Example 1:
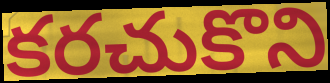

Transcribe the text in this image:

కరచుకొని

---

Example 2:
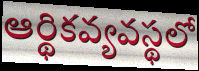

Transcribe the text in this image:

ఆర్థికవ్యవస్థలో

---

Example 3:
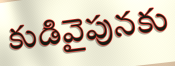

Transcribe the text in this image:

కుడివైపునకు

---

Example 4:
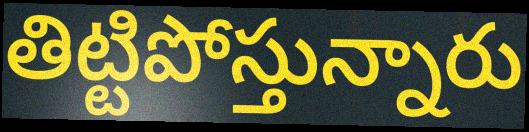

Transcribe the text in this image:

తిట్టిపోస్తున్నారు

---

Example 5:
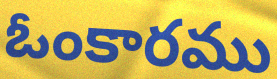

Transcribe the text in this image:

ఓంకారము